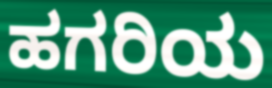
ಹಗರಿಯ